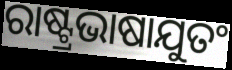
ରାଷ୍ଟ୍ରଭାଷାଯୁତଂ